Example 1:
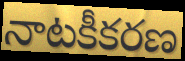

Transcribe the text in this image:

నాటకీకరణ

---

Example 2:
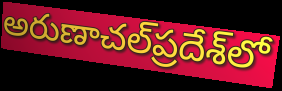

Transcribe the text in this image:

అరుణాచల్‌ప్రదేశ్‌లో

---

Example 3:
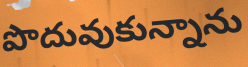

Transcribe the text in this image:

పొదువుకున్నాను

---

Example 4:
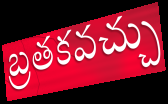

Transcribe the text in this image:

బ్రతకవచ్చు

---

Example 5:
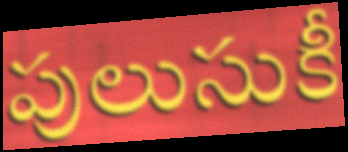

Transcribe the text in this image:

పులుసుకీ